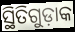
ସ୍ଥିତିଗୁଡ଼ାକ